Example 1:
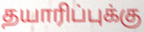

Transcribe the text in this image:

தயாரிப்புக்கு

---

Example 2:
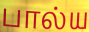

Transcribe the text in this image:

பால்ய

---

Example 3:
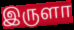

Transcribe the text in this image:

இருளா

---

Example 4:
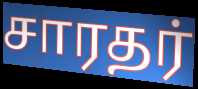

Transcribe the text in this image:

சாரதர்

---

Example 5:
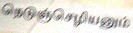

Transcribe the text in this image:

நெடுஞ்செழியனும்